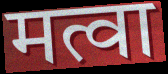
मत्वा